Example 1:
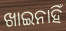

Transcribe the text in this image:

ଖାଇନାହିଁ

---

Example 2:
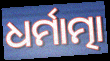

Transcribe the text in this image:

ଧର୍ମାତ୍ମା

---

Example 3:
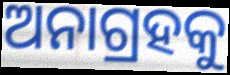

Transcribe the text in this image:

ଅନାଗ୍ରହକୁ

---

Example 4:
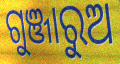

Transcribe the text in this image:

ଗୁଞ୍ଜାରୁଅ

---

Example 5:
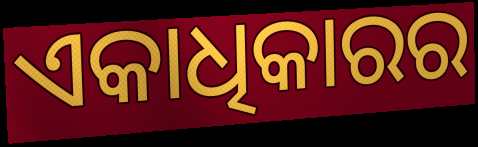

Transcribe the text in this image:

ଏକାଧିକାରର